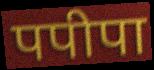
पपीपा